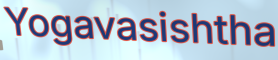
Yogavasishtha